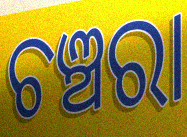
ଚଞ୍ଚରା